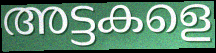
അട്ടകളെ